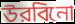
উরবিনো